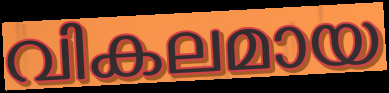
വികലമായ